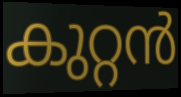
കുറ്റൻ